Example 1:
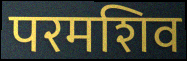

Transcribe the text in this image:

परमशिव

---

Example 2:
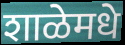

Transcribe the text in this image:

शाळेमधे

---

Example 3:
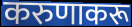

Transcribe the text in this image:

करुणाकरू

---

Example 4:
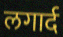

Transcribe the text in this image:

लगार्द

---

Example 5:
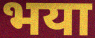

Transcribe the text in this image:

भया